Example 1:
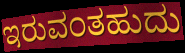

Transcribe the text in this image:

ಇರುವಂತಹುದು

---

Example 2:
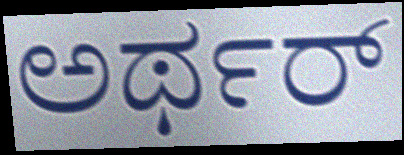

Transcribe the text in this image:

ಅರ್ಥರ್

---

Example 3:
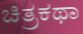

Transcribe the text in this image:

ಚಿತ್ರಕಥಾ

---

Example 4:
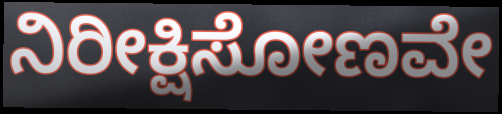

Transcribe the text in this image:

ನಿರೀಕ್ಷಿಸೋಣವೇ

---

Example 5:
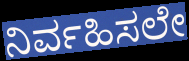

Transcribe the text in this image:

ನಿರ್ವಹಿಸಲೇ